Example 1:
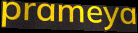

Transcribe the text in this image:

prameya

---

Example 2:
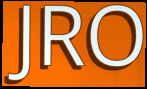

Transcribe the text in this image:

JRO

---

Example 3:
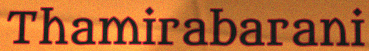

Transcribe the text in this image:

Thamirabarani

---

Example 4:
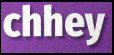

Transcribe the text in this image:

chhey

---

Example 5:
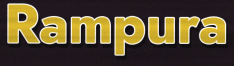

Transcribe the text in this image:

Rampura